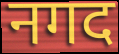
नगद